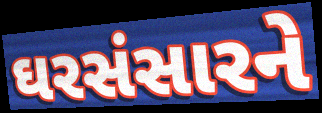
ઘરસંસારને